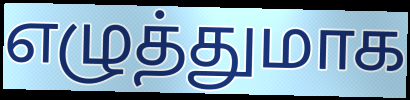
எழுத்துமாக